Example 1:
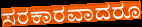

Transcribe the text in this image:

ಸರಕಾರವಾದರೂ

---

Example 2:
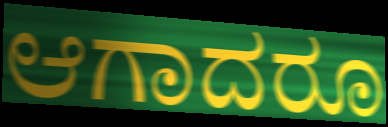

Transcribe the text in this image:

ಆಗಾದರೂ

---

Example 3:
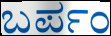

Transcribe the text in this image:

ಬರ್ಪಂ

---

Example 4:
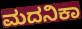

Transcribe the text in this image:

ಮದನಿಕಾ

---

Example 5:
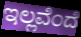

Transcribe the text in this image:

ಇಲ್ಲವೆಂದೆ